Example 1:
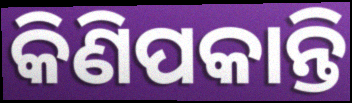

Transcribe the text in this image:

କିଣିପକାନ୍ତି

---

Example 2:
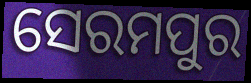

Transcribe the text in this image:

ସେରମପୁର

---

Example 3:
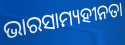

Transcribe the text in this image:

ଭାରସାମ୍ୟହୀନତା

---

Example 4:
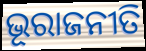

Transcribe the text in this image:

ଭୂରାଜନୀତି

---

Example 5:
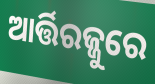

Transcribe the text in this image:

ଆର୍ତ୍ତିରଜ୍ଜୁରେ